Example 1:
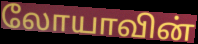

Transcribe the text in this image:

லோயாவின்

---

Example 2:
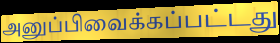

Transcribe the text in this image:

அனுப்பிவைக்கப்பட்டது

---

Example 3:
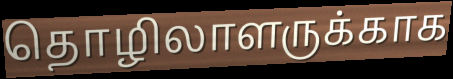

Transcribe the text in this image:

தொழிலாளருக்காக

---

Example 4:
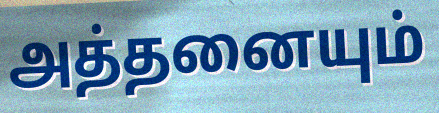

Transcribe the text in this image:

அத்தனையும்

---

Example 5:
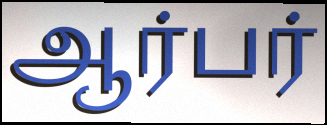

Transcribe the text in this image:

ஆர்பர்